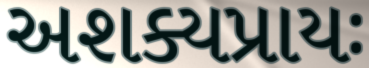
અશક્યપ્રાયઃ